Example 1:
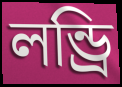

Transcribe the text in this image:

লন্ড্রি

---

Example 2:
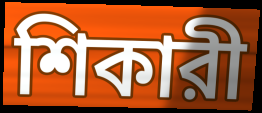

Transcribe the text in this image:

শিকারী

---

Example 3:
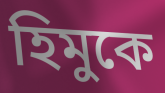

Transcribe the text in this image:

হিমুকে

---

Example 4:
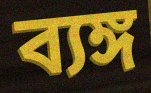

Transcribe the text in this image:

ব্যঙ্গ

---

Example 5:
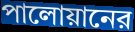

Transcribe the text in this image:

পালোয়ানের